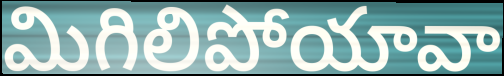
మిగిలిపోయావా